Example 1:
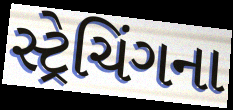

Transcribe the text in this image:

સ્ટ્રેચિંગના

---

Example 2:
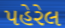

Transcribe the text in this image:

પહેરેલ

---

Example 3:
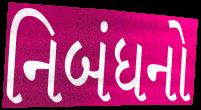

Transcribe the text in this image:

નિબંધનો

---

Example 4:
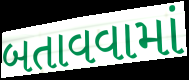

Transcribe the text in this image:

બતાવવામાં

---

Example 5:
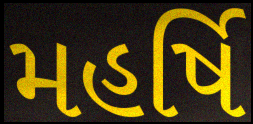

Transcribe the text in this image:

મહર્ષિ